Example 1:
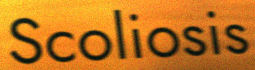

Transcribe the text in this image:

Scoliosis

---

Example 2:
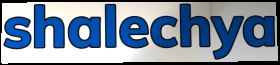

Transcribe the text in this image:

shalechya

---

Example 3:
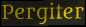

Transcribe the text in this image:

Pergiter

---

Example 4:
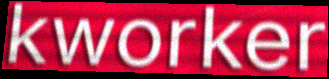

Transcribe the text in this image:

kworker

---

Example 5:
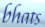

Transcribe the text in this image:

bhats